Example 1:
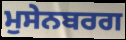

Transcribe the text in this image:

ਮੁਸੇਨਬਰਗ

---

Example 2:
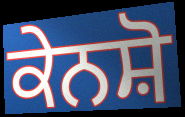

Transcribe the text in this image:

ਕੇਨਸ਼ੋ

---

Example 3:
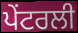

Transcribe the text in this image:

ਪੇਂਟਰਲੀ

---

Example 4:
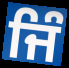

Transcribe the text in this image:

ਜਿੰ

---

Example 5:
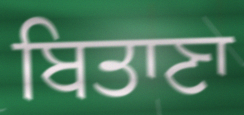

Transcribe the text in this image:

ਬਿਤਾਣਾ